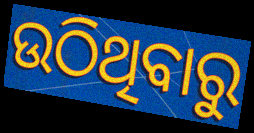
ଉଠିଥିବାରୁ